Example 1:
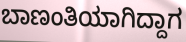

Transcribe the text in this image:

ಬಾಣಂತಿಯಾಗಿದ್ದಾಗ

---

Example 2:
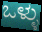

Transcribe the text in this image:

ಒಳ್ಳು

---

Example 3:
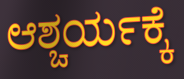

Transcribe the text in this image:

ಆಶ್ಚರ್ಯಕ್ಕೆ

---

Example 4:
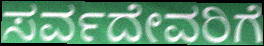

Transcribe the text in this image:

ಸರ್ವದೇವರಿಗೆ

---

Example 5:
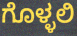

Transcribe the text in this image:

ಗೊಳ್ಳಲಿ